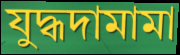
যুদ্ধদামামা